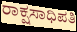
ರಾಕ್ಷಸಾಧಿಪತಿ